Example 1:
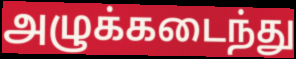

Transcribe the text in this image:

அழுக்கடைந்து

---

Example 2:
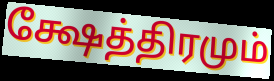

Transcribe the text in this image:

க்ஷேத்திரமும்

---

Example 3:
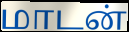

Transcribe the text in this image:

மாடன்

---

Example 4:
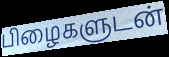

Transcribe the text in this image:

பிழைகளுடன்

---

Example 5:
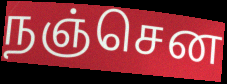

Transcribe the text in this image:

நஞ்சென